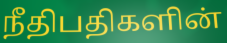
நீதிபதிகளின்